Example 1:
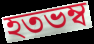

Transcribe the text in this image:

হতভম্ব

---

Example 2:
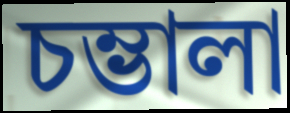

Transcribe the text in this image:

চম্ভালা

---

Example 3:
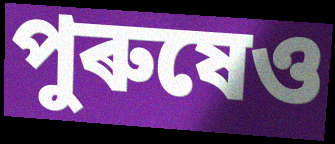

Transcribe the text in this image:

পুৰুষেও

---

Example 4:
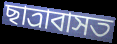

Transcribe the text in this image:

ছাত্ৰাবাসত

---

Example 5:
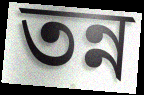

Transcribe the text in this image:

তন্ন